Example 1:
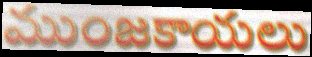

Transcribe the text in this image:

ముంజకాయలు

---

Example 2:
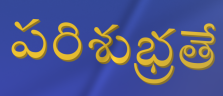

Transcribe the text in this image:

పరిశుభ్రతే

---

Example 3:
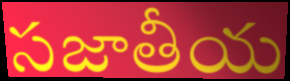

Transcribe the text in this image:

సజాతీయ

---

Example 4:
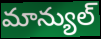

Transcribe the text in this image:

మాన్యుల్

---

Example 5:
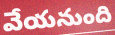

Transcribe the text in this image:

వేయనుంది